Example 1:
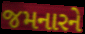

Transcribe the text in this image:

જમનારને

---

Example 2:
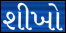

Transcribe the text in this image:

શીખો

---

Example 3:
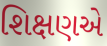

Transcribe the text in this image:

શિક્ષણએ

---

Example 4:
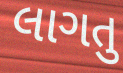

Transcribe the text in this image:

લાગતુ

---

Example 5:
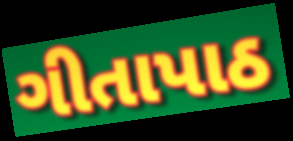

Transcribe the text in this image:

ગીતાપાઠ